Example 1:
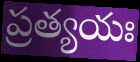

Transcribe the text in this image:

ప్రత్యయః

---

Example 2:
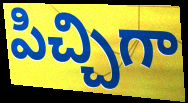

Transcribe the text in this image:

పిచ్చిగా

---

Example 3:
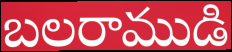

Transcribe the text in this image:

బలరాముడి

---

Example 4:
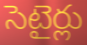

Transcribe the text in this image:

సెటైర్లు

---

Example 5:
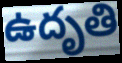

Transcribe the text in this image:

ఉదృతి